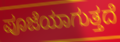
ಪೂಜೆಯಾಗುತ್ತದೆ